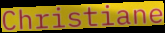
Christiane